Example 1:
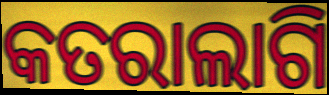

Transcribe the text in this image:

କତରାଲାଗି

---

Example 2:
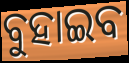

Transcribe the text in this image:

ବୁହାଇବ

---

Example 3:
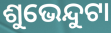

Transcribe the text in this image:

ଶୁଭେନ୍ଦୁଟା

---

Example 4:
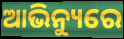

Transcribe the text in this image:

ଆଭିନ୍ୟୁରେ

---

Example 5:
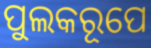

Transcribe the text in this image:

ପୁଲକରୂପେ